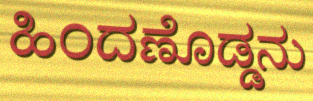
ಹಿಂದಣೊಡ್ಡನು